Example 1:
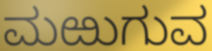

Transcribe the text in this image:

ಮಱುಗುವ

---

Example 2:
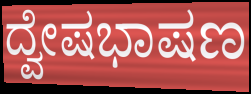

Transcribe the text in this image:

ದ್ವೇಷಭಾಷಣ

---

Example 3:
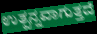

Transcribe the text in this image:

ಉತ್ಪನ್ನವಾಗುತ್ತದೆ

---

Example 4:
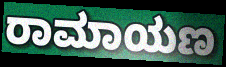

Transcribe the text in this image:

ರಾಮಾಯಣ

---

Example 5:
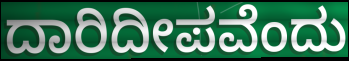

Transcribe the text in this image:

ದಾರಿದೀಪವೆಂದು